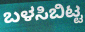
ಬಳಸಿಬಿಟ್ಟ